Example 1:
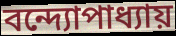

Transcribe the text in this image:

বন্দ্যোপাধ্যায়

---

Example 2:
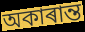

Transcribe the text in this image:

অকাৰান্ত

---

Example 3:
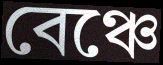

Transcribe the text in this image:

বেঞ্চে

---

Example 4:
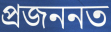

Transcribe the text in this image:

প্ৰজননত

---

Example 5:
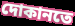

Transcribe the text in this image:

দোকানতে